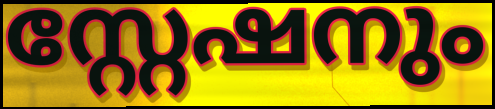
സ്റ്റേഷനും